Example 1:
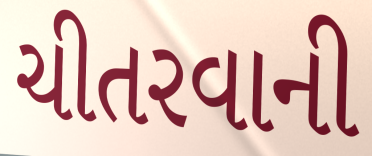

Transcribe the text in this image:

ચીતરવાની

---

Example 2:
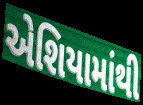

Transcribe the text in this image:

એશિયામાંથી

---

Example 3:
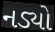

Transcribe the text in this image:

નડ્યો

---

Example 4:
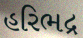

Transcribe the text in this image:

હરિભદ્ર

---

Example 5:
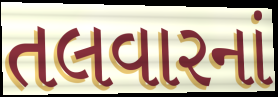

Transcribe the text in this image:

તલવારનાં